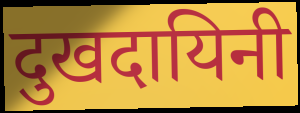
दुखदायिनी